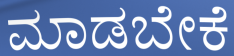
ಮಾಡಬೇಕೆ